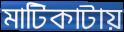
মাটিকাটায়